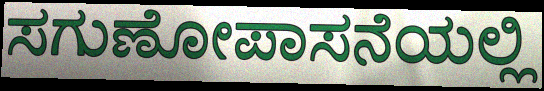
ಸಗುಣೋಪಾಸನೆಯಲ್ಲಿ